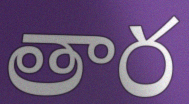
తార